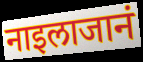
नाइलाजानं